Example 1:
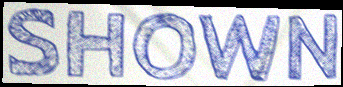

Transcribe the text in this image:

SHOWN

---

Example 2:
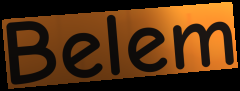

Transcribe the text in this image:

Belem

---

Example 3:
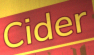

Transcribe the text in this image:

Cider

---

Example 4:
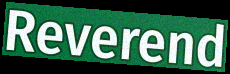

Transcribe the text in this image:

Reverend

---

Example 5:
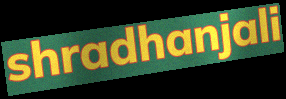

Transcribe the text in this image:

shradhanjali